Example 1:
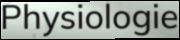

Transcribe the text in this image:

Physiologie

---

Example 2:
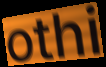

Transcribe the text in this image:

othi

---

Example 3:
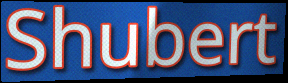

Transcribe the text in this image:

Shubert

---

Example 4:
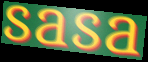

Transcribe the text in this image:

sasa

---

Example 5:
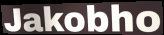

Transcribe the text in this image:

Jakobho